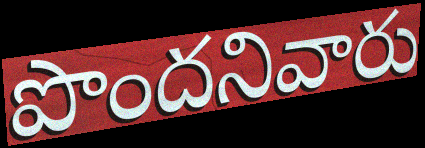
పొందనివారు